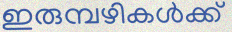
ഇരുമ്പഴികൾക്ക്